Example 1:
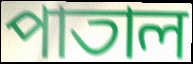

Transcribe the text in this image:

পাতাল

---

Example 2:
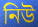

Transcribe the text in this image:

নিউ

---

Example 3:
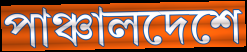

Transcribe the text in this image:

পাঞ্চালদেশে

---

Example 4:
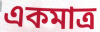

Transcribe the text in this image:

একমাত্র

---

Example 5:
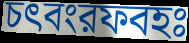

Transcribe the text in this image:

চৎবংরফবহঃ